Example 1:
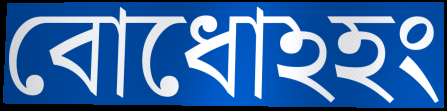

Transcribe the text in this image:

বোধোঽহং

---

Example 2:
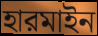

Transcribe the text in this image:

হারমাইন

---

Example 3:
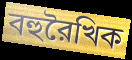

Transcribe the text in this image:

বহুরৈখিক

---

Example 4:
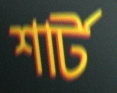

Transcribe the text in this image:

শার্ট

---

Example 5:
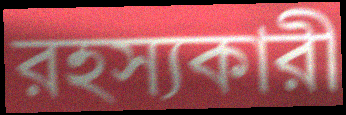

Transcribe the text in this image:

রহস্যকারী